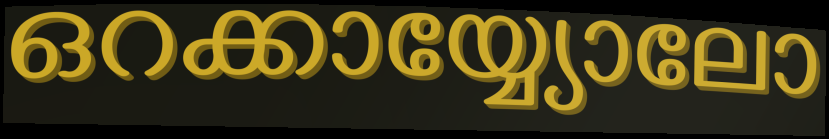
ഒറക്കായ്യ്യോലോ